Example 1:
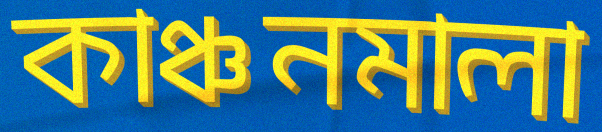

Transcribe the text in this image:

কাঞ্চনমালা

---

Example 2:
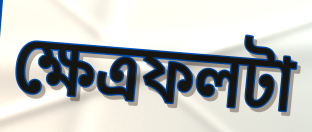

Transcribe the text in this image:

ক্ষেত্রফলটা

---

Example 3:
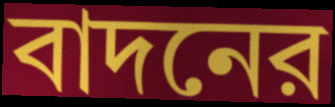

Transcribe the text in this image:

বাদনের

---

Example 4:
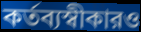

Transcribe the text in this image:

কর্তব্যস্বীকারও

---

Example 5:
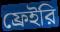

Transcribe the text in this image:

ফ্রেইরি